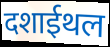
दशाईथल